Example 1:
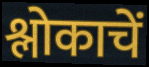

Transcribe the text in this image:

श्लोकाचें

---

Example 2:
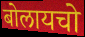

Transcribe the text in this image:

बोलायचो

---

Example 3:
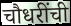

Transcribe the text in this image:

चौधरींची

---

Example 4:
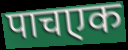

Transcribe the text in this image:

पाचएक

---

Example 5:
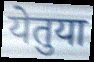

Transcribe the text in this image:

येतुया